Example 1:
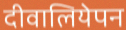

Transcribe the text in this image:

दीवालियेपन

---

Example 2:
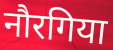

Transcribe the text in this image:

नौरगिया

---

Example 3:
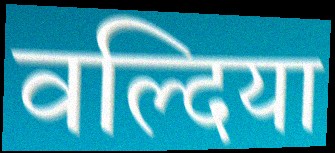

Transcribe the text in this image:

वल्दिया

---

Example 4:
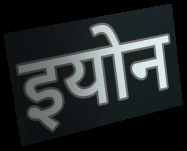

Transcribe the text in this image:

इयोन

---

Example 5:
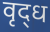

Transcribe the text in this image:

वृद्ध